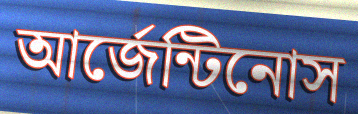
আর্জেন্টিনোস